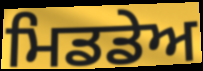
ਮਿਡਡੇਅ